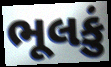
ભૂલકું